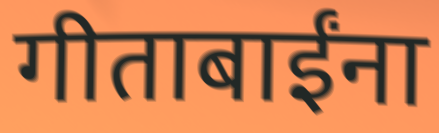
गीताबाईंना